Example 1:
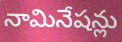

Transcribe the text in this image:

నామినేషన్లు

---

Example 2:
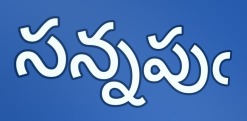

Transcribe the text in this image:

సన్నపుఁ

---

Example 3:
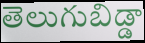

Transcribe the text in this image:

తెలుగుబిడ్డా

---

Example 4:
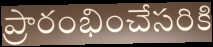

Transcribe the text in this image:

ప్రారంభించేసరికి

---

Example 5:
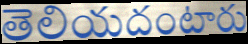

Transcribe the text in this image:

తెలియదంటారు